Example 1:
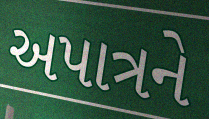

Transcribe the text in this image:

અપાત્રને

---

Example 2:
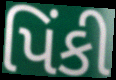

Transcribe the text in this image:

પિંકી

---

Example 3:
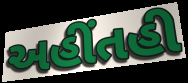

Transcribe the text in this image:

અહીંતહી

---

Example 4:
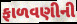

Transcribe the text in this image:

ફાળવણીની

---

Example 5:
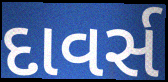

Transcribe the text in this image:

દાવર્સ